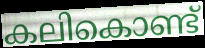
കലികൊണ്ട്